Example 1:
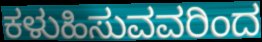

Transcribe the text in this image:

ಕಳುಹಿಸುವವರಿಂದ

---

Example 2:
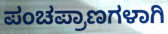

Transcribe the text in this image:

ಪಂಚಪ್ರಾಣಗಳಾಗಿ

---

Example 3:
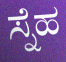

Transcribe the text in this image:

ಸ್ನೆಹ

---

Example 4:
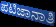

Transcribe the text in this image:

ಪಟಿಜಾನಾತಿ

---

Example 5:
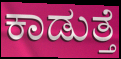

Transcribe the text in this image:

ಕಾಡುತ್ತೆ